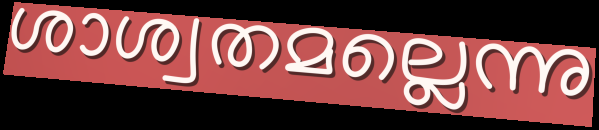
ശാശ്വതമല്ലെന്നു